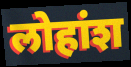
लोहांश